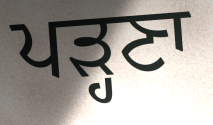
ਪੜ੍ਹਣਾ